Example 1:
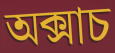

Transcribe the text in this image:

অক্সাচ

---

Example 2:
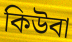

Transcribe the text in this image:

কিউবা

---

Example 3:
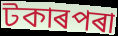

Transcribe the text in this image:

টকাৰপৰা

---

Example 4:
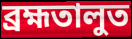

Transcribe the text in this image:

ব্ৰহ্মতালুত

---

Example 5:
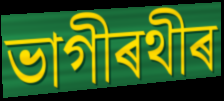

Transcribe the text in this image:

ভাগীৰথীৰ